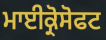
ਮਾਈਕ੍ਰੋਸੋਫਟ